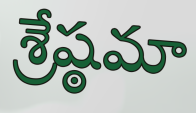
శ్రేష్ఠమా